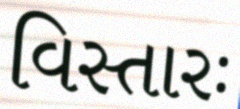
વિસ્તારઃ